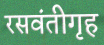
रसवंतीगृह